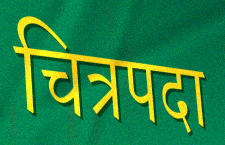
चित्रपदा